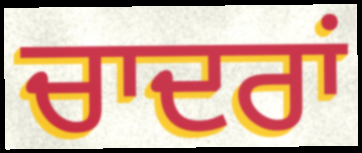
ਚਾਦਰਾਂ